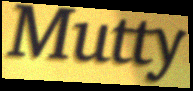
Mutty